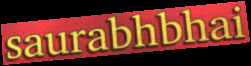
saurabhbhai